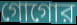
গোগোর